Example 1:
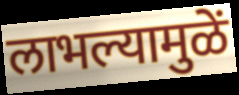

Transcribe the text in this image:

लाभल्यामुळें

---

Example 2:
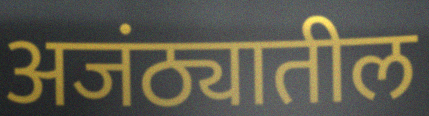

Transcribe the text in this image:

अजंठ्यातील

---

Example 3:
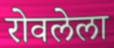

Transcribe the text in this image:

रोवलेला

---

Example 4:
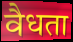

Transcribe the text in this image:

वैधता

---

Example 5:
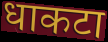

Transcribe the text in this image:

धाकटा